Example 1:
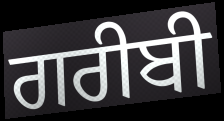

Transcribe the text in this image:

ਗਰੀਬੀ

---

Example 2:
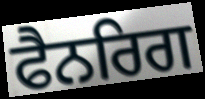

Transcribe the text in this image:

ਫੈਨਰਿਗ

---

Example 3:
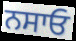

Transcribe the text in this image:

ਨਸਾਓ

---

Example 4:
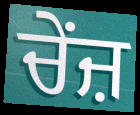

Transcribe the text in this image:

ਚੇਂਜ਼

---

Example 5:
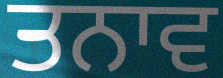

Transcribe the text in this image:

ਤਨਾਵ